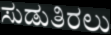
ಸುಡುತಿರಲು